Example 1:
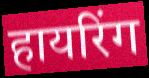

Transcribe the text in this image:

हायरिंग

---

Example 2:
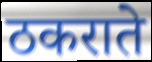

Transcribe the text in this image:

ठकराते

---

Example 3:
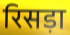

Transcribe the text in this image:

रिसड़ा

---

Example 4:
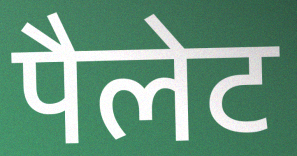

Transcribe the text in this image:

पैलेट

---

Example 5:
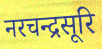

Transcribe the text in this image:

नरचन्द्रसूरि